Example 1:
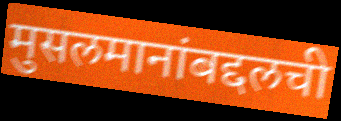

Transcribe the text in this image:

मुसलमानांबद्दलची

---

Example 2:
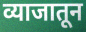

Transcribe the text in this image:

व्याजातून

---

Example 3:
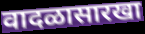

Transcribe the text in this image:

वादळासारखा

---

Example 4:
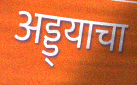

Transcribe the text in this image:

अड्ड्याचा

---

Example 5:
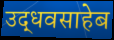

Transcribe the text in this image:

उद्धवसाहेब